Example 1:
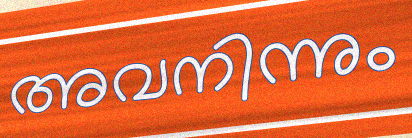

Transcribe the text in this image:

അവനിന്നും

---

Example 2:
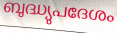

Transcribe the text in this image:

ബുദ്ധ്യുപദേശം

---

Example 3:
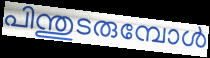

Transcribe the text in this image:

പിന്തുടരുമ്പോൾ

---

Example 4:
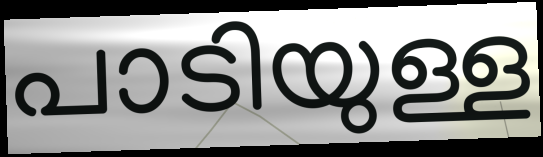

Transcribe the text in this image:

പാടിയുള്ള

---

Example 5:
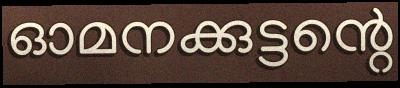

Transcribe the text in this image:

ഓമനക്കുട്ടന്റെ